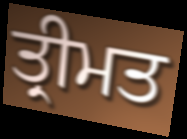
ਤ੍ਰੀਮਤ